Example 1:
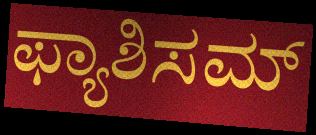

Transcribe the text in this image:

ಫ್ಯಾಶಿಸಮ್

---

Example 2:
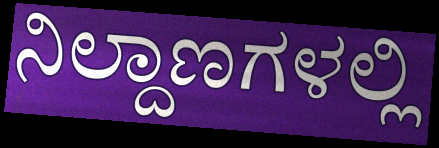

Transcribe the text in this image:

ನಿಲ್ದಾಣಗಳಲ್ಲಿ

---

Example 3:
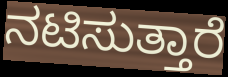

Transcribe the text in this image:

ನಟಿಸುತ್ತಾರೆ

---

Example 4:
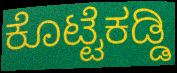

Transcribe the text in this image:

ಕೊಟ್ಟೆಕಡ್ಡಿ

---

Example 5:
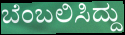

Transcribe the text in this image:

ಬೆಂಬಲಿಸಿದ್ದು